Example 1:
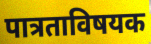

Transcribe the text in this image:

पात्रताविषयक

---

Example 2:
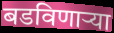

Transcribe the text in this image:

बडविणाऱ्या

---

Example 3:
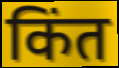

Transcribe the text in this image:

किंत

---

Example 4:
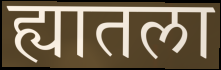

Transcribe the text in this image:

ह्यातला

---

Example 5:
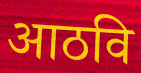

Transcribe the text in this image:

आठवि